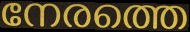
നേരത്തെ